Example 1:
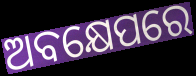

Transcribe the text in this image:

ଅବକ୍ଷେପରେ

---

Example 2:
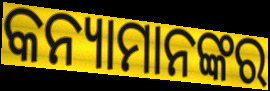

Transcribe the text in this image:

କନ୍ୟାମାନଙ୍କର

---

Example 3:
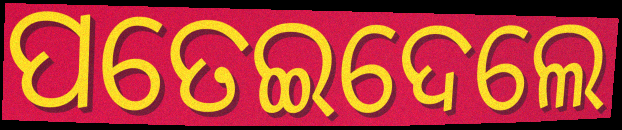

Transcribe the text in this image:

ପତେଇଦେଲେ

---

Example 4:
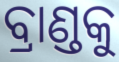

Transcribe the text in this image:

ବ୍ରାଣ୍ଡକୁ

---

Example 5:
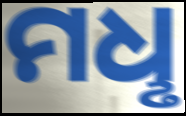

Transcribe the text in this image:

ମଧୢ